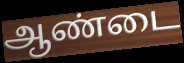
ஆண்டை